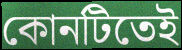
কোনটিতেই